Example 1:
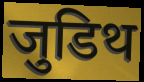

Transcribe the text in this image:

जुडिथ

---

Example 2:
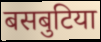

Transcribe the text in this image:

बसबुटिया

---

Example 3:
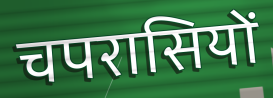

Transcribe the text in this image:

चपरासियों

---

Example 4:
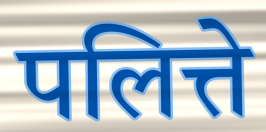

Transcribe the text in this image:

पलित्ते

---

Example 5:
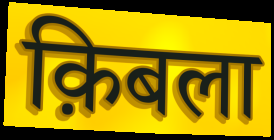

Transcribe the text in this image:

क़िबला